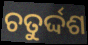
ଚତୁର୍ଦ୍ଦଶ